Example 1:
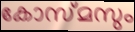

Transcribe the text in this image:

കോസ്മസും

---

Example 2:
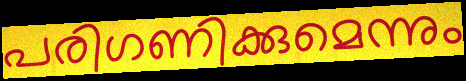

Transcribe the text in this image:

പരിഗണിക്കുമെന്നും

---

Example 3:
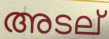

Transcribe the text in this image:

അടല്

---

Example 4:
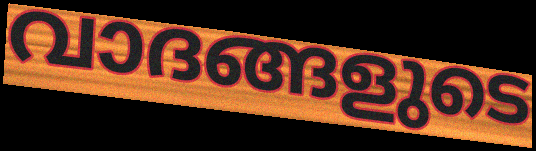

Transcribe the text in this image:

വാദങ്ങളുടെ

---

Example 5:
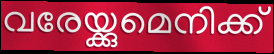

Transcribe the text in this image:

വരേയ്ക്കുമെനിക്ക്